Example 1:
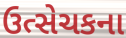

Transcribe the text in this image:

ઉત્સેચકના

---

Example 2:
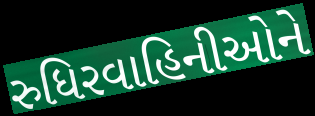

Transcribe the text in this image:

રુધિરવાહિનીઓને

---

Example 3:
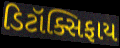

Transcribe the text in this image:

ડિટૉક્સિફાય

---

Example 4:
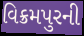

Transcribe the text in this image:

વિક્રમપુરની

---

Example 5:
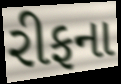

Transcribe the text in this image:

રીફના